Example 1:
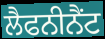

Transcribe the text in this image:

ਲੈਫਨੀਨੈਂਟ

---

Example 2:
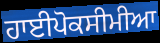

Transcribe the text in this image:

ਹਾਈਪੋਕਸੀਮੀਆ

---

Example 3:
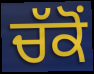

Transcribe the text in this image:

ਚੱਕੋਂ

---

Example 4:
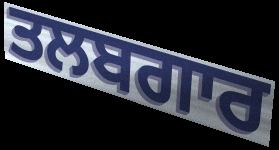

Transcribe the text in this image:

ਤਲਬਗਾਰ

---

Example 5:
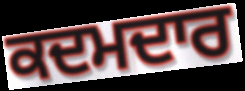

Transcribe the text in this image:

ਕਦਮਦਾਰ